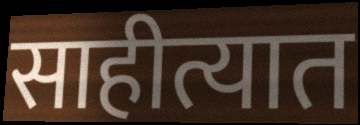
साहीत्यात